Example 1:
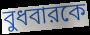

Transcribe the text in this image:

বুধবারকে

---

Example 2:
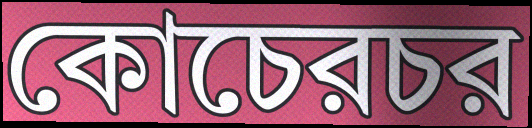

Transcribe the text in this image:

কোচেরচর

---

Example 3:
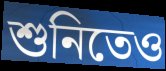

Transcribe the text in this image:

শুনিতেও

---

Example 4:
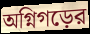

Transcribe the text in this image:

অগ্নিগড়ের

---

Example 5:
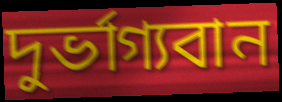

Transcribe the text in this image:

দুর্ভাগ্যবান